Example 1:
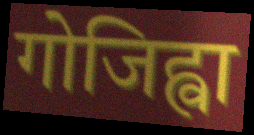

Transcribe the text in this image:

गोजिह्वा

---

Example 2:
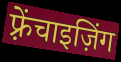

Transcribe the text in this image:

फ़्रेंचाइज़िंग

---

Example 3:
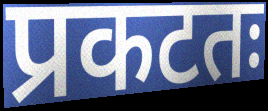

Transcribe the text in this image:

प्रकटतः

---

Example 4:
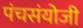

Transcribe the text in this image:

पंचसंयोजी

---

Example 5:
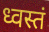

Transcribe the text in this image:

ध्वस्तं